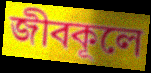
জীবকূলে